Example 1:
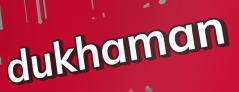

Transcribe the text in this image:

dukhaman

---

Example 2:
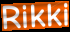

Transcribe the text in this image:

Rikki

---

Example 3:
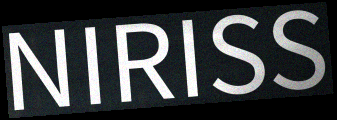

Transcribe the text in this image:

NIRISS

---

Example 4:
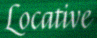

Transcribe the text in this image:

Locative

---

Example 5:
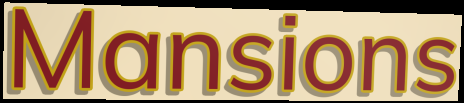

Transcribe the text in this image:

Mansions